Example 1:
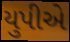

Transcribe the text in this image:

યુપીએ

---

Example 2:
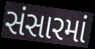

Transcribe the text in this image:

સંસારમાં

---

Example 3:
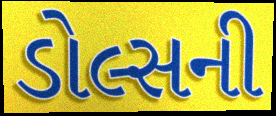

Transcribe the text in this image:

ડોલ્સની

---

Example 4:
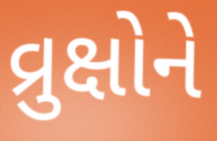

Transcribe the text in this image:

વ્રુક્ષોને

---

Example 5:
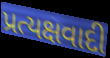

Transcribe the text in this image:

પ્રત્યક્ષવાદી